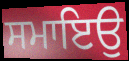
ਸਮਾਇਉ